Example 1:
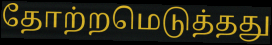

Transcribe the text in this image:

தோற்றமெடுத்தது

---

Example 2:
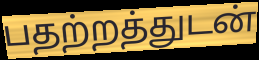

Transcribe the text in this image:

பதற்றத்துடன்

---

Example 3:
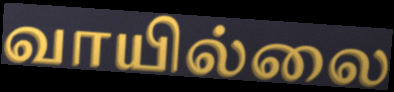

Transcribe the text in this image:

வாயில்லை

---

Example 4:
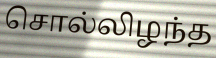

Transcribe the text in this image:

சொல்லிழந்த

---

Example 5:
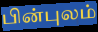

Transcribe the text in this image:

பின்புலம்